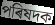
পৰিষদক